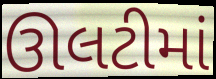
ઊલટીમાં